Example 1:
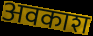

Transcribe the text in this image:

अवकाश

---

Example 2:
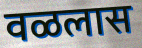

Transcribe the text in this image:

वळलास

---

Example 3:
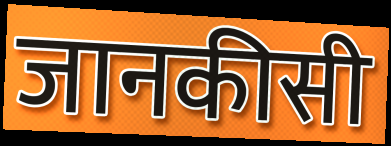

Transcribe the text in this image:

जानकीसी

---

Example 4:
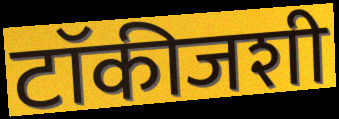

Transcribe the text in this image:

टॉकीजशी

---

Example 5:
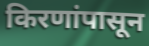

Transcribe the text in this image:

किरणांपासून